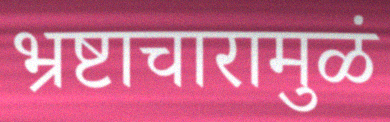
भ्रष्टाचारामुळं